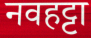
नवहट्टा